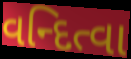
વન્દિત્વા